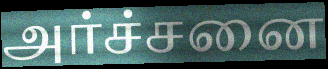
அர்ச்சனை